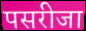
पसरीजा